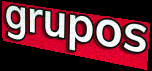
grupos